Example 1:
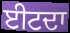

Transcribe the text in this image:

ਈਟਦਾ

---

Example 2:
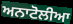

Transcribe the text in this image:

ਅਨਾਟੋਲੀਆ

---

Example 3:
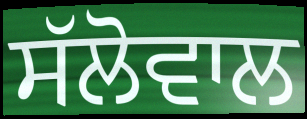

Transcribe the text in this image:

ਸੱਲੋਵਾਲ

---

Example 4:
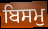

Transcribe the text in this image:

ਬਿਸਮੁ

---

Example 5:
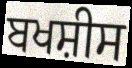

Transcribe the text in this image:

ਬਖਸ਼ੀਸ